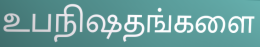
உபநிஷதங்களை